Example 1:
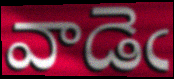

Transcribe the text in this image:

వాడెఁ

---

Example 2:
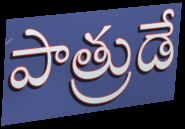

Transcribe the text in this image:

పాత్రుడే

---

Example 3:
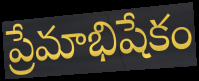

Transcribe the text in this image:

ప్రేమాభిషేకం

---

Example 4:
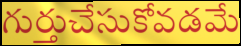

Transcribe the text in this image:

గుర్తుచేసుకోవడమే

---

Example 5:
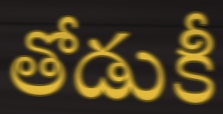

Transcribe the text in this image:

తోడుకీ